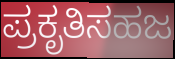
ಪ್ರಕೃತಿಸಹಜ